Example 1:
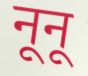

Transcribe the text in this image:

नूनू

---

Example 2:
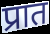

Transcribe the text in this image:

प्रात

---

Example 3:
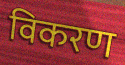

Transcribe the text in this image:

विकरण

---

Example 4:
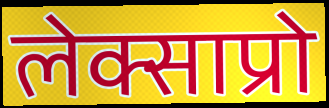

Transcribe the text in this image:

लेक्साप्रो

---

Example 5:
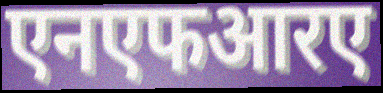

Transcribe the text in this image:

एनएफआरए